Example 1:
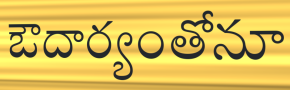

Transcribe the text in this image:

ఔదార్యంతోనూ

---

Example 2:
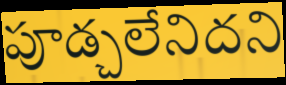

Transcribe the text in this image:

పూడ్చలేనిదని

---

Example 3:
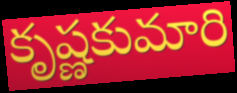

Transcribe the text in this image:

కృష్ణకుమారి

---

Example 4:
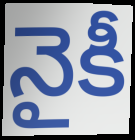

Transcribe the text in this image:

నైకీ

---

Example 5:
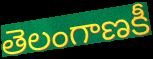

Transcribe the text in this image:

తెలంగాణకీ